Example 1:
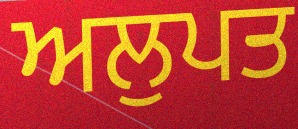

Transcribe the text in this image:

ਅਲੁਪਤ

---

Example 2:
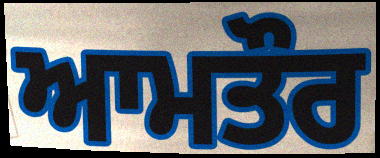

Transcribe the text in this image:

ਆਮਤੌਰ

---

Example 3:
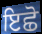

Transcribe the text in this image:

ਇਛੋ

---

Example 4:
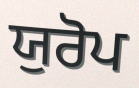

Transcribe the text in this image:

ਯੁਰੋਪ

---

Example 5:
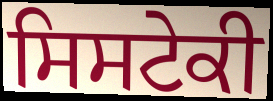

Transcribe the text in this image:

ਸਿਸਟੇਕੀ